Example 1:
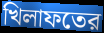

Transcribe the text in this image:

খিলাফতের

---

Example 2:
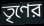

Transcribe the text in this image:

তৃণের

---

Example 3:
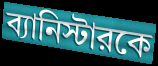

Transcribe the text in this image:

ব্যানিস্টারকে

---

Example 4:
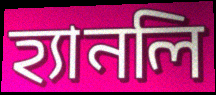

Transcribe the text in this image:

হ্যানলি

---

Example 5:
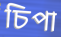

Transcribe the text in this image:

চিপা